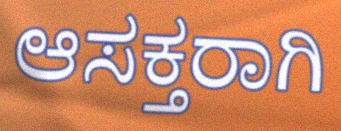
ಆಸಕ್ತರಾಗಿ